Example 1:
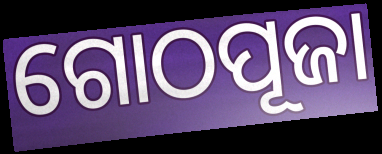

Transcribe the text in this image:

ଗୋଠପୂଜା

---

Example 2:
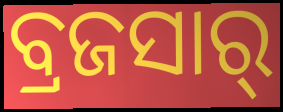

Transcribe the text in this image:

ବ୍ରଜସାର୍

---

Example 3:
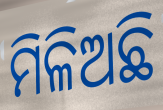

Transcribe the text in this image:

ମିଳିଅଛି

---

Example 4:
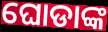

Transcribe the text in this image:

ଘୋଡାଙ୍କ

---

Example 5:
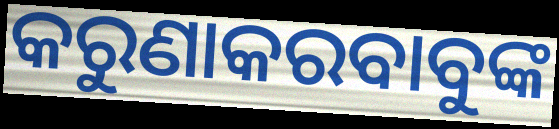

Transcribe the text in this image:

କରୁଣାକରବାବୁଙ୍କ